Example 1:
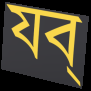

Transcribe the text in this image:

যব্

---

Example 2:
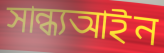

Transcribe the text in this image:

সান্ধ্যআইন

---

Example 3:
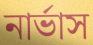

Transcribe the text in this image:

নার্ভাস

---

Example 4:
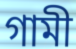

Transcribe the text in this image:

গামী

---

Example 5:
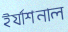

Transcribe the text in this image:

ইর্যাশনাল